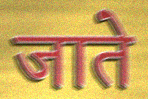
जाते